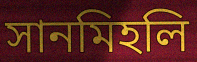
সানমিহলি